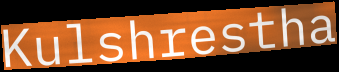
Kulshrestha